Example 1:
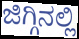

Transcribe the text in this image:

ಜಿಗ್ಗಿನಲ್ಲಿ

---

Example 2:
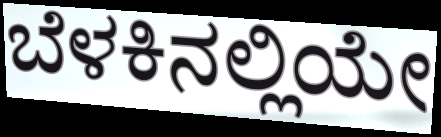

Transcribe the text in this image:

ಬೆಳಕಿನಲ್ಲಿಯೇ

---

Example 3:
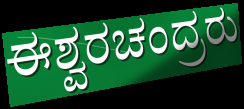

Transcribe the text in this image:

ಈಶ್ವರಚಂದ್ರರು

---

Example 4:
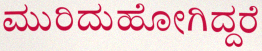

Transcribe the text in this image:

ಮುರಿದುಹೋಗಿದ್ದರೆ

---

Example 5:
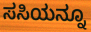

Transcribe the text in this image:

ಸಸಿಯನ್ನೂ